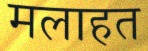
मलाहत